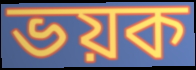
ভয়ক